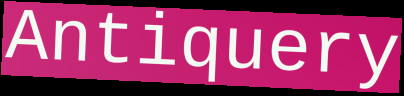
Antiquery